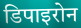
डिपाइरोन